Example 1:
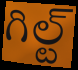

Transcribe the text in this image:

గిల్ట్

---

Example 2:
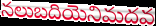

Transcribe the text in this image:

నలుబదియెనిమదవ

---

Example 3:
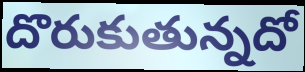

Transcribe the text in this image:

దొరుకుతున్నదో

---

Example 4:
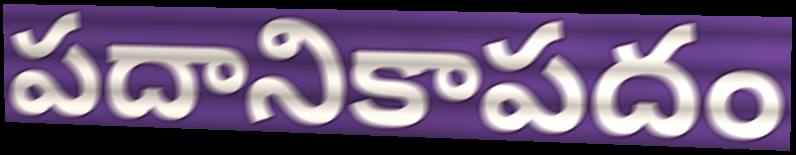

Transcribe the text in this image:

పదానికాపదం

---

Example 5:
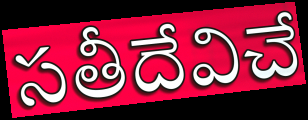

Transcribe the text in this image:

సతీదేవిచే